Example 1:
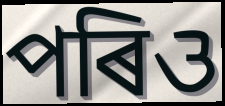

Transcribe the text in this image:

পৰিও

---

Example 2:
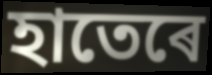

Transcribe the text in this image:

হাতেৰে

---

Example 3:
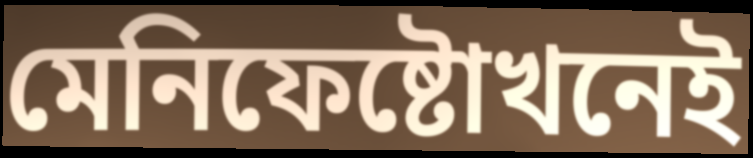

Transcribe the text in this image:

মেনিফেষ্টোখনেই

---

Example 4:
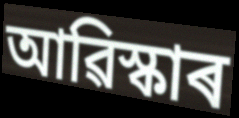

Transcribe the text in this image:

আৱিস্কাৰ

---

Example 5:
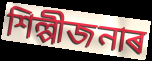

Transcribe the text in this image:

শিল্পীজনাৰ